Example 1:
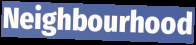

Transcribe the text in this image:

Neighbourhood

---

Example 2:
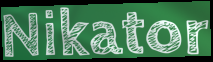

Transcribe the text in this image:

Nikator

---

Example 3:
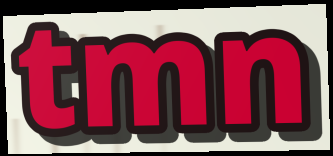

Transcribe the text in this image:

tmn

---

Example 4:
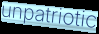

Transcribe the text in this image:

unpatriotic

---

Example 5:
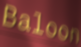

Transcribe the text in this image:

Baloon